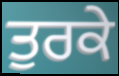
ਤੁਰਕੇ